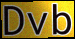
Dvb